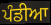
ਪੰਡੀਆ